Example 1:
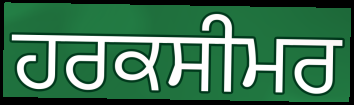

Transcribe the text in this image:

ਹਰਕਸੀਮਰ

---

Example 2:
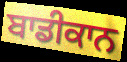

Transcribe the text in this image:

ਬਾਡੀਕਾਨ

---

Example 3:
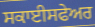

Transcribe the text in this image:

ਸਕਾਈਸਫੇਅਰ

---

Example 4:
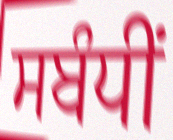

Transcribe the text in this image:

ਸਬੰਧੀਂ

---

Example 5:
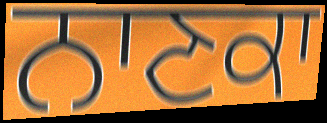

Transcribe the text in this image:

ਨਾਣਕਾ